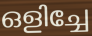
ഒളിച്ചേ